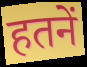
हतनें